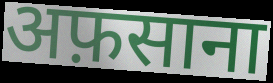
अफ़साना